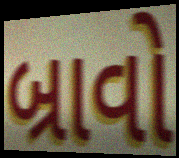
બ્રાવો